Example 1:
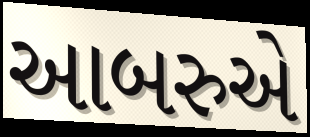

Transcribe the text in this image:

આબરુએ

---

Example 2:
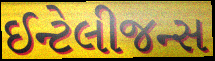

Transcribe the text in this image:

ઈન્ટેલીજન્સ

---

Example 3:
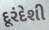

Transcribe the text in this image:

દૂરંદેશી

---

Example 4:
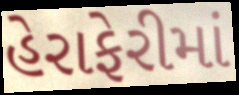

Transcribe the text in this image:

હેરાફેરીમાં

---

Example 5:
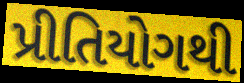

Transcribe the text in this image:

પ્રીતિયોગથી